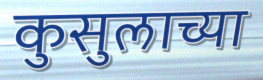
कुसुलाच्या